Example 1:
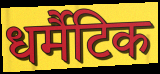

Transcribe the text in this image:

धर्मैटिक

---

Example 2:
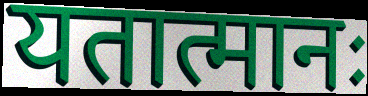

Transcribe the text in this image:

यतात्मानः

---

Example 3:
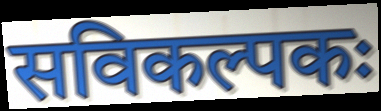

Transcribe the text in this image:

सविकल्पकः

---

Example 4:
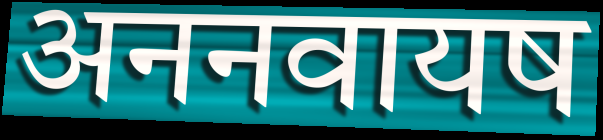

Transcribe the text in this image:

अननवायष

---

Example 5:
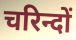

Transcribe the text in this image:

चरिन्दों